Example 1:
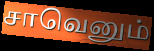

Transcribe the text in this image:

சாவெனும்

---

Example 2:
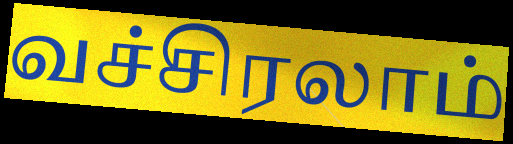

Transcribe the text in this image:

வச்சிரலாம்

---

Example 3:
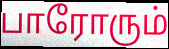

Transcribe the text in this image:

பாரோரும்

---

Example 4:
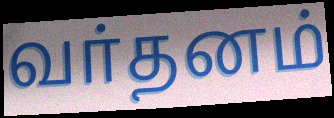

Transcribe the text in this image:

வர்தனம்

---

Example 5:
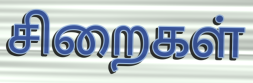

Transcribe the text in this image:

சிறைகள்